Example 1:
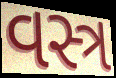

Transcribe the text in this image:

વસ્ત્ર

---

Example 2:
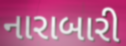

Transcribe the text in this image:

નારાબારી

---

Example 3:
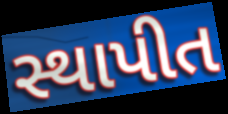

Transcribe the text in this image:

સ્થાપીત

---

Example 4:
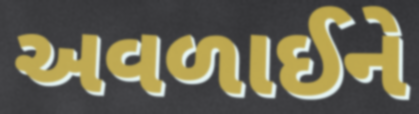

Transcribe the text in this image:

અવળાઈને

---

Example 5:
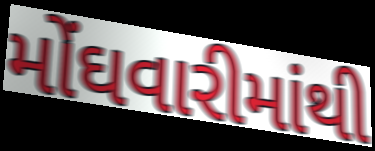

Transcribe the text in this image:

મોંઘવારીમાંથી